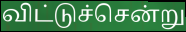
விட்டுச்சென்று